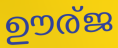
ഊര്ജ